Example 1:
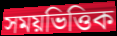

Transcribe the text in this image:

সময়ভিত্তিক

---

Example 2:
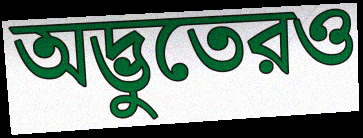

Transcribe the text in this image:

অদ্ভুতেরও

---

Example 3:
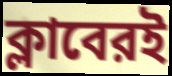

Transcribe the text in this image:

ক্লাবেরই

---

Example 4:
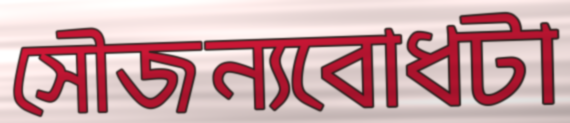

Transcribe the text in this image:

সৌজন্যবোধটা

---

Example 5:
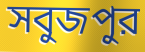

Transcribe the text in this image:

সবুজপুর